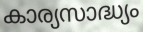
കാര്യസാദ്ധ്യം